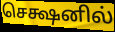
செக்ஷனில்